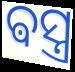
ଵସ୍ତ୍ର